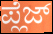
ಪ್ಲೆಜ್